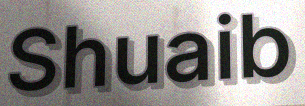
Shuaib